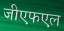
जीएफएल